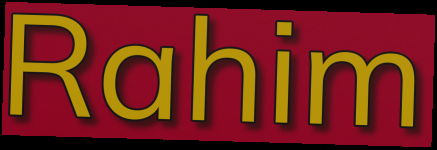
Rahim